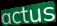
actus